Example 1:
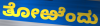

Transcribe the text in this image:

ತೋಱೆಂದು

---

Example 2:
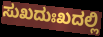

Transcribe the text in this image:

ಸುಖದುಃಖದಲ್ಲಿ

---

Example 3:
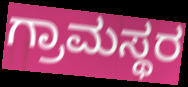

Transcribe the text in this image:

ಗ್ರಾಮಸ್ಥರ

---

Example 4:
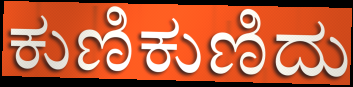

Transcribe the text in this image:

ಕುಣಿಕುಣಿದು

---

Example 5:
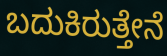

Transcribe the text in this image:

ಬದುಕಿರುತ್ತೇನೆ